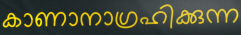
കാണാനാഗ്രഹിക്കുന്ന